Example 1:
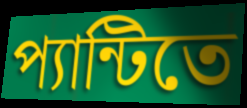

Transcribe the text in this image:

প্যান্টিতে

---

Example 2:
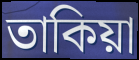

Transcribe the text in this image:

তাকিয়া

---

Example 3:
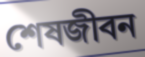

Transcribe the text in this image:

শেষজীবন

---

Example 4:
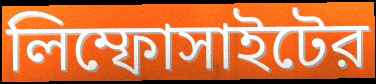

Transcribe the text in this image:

লিম্ফোসাইটের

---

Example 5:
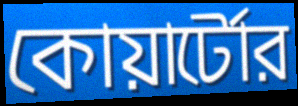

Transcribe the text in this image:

কোয়ার্টোর